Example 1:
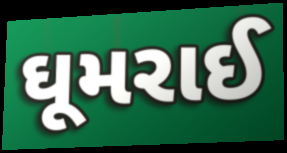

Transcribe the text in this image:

ઘૂમરાઈ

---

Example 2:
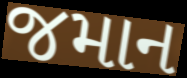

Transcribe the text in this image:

જમાન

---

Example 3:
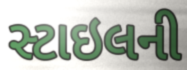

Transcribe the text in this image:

સ્ટાઇલની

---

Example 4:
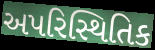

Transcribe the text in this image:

અપરિસ્થિતિક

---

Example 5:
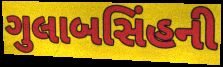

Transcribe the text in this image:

ગુલાબસિંહની